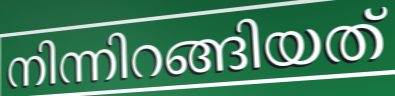
നിന്നിറങ്ങിയത്